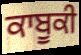
ਕਾਬੂਕੀ